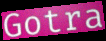
Gotra